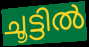
ചൂട്ടിൽ